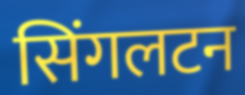
सिंगलटन